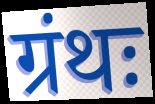
ग्रंथः